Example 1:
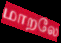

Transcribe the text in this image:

மாறலே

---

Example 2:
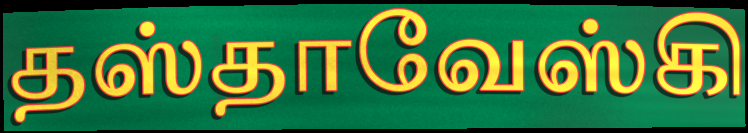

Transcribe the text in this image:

தஸ்தாவேஸ்கி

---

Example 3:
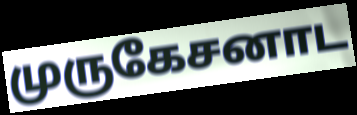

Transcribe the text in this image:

முருகேசனாட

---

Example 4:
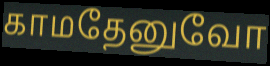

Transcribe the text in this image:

காமதேனுவோ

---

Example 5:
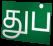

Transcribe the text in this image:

துப்